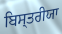
ਬਿਸ੍ਤਰੀਯਾ